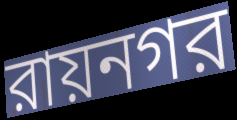
রায়নগর